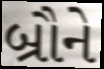
બ્રૌને